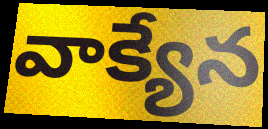
వాక్యేన